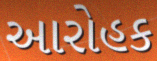
આરોહક